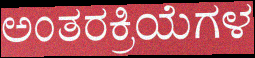
ಅಂತರಕ್ರಿಯೆಗಳ